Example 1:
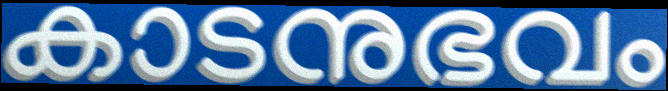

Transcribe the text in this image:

കാടനുഭവം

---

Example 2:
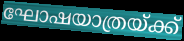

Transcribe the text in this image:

ഘോഷയാത്രയ്ക്ക്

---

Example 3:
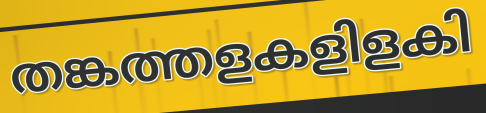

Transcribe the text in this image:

തങ്കത്തളകളിളകി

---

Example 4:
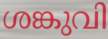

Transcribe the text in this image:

ശങ്കുവി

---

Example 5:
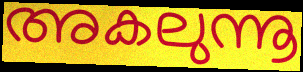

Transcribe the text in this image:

അകലുന്നൂ